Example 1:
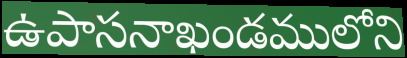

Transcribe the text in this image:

ఉపాసనాఖండములోని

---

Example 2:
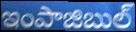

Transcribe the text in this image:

ఇంపాజిబుల్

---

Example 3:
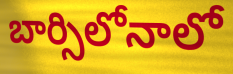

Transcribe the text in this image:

బార్సిలోనాలో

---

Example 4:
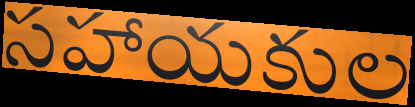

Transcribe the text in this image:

సహాయకుల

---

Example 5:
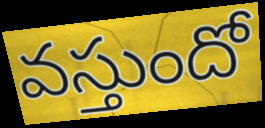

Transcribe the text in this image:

వస్తుందో